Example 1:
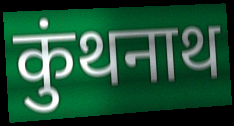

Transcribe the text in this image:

कुंथनाथ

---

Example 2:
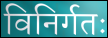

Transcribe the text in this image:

विनिर्गतः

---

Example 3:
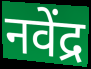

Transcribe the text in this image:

नवेंद्र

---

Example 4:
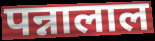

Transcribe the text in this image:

पन्नालाल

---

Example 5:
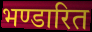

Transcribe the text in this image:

भण्डारित